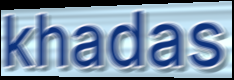
khadas